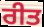
ਰੀਤ